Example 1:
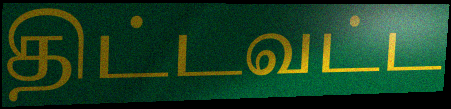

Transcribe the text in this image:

திட்டவட்ட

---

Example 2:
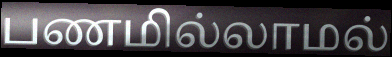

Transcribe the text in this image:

பணமில்லாமல்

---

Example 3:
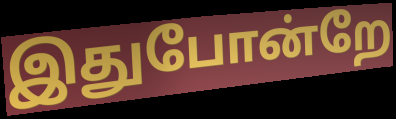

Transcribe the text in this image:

இதுபோன்றே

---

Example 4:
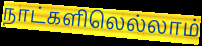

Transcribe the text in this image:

நாட்களிலெல்லாம்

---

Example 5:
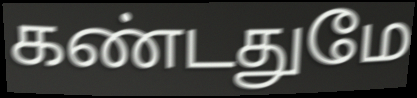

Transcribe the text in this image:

கண்டதுமே